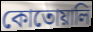
কোতোয়ালি